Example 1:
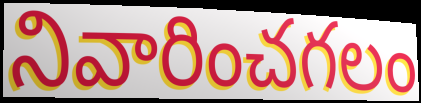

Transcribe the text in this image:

నివారించగలం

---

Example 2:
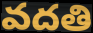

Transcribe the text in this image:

వదతి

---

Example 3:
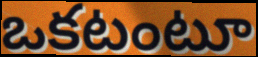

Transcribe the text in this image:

ఒకటంటూ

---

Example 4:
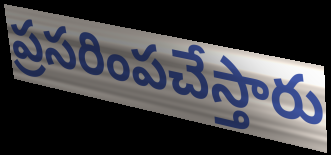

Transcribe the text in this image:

ప్రసరింపచేస్తారు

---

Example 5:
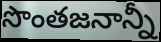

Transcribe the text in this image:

సొంతజనాన్నీ